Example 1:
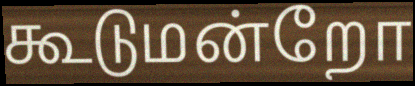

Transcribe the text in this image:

கூடுமன்றோ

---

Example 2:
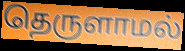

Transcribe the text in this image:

தெருளாமல்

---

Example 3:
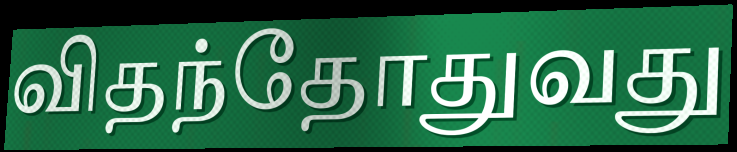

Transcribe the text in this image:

விதந்தோதுவது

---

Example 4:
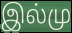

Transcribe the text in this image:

இல்மு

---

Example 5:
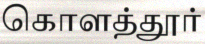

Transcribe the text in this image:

கொளத்தூர்